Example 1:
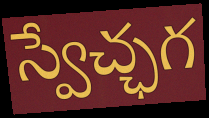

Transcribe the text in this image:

స్వేచ్ఛగ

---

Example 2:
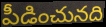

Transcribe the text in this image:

పీడించునది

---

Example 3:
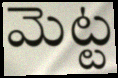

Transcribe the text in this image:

మెట్ట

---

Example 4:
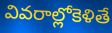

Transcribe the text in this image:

వివరాల్లోకెళితే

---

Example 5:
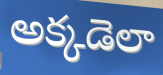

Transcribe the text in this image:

అక్కడెలా